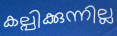
കല്പിക്കുന്നില്ല